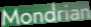
Mondrian